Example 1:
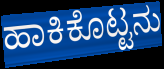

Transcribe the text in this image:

ಹಾಕಿಕೊಟ್ಟನು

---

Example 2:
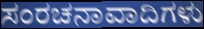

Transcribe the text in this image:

ಸಂರಚನಾವಾದಿಗಳು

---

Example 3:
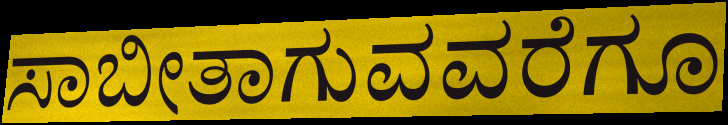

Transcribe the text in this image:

ಸಾಬೀತಾಗುವವರೆಗೂ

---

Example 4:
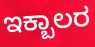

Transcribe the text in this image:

ಇಕ್ಬಾಲರ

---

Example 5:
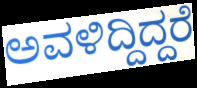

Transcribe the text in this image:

ಅವಳಿದ್ದಿದ್ದರೆ